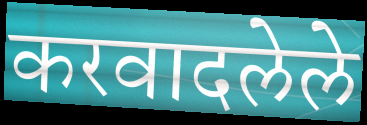
करवादलेले